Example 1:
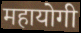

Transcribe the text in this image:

महायोगी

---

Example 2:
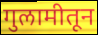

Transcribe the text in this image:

गुलामीतून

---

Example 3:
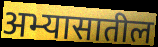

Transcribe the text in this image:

अभ्यासातील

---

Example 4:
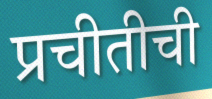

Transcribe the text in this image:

प्रचीतीची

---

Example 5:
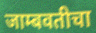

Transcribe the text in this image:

जाम्बवतीचा